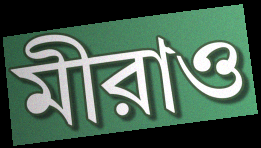
মীরাও